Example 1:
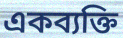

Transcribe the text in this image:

একব্যক্তি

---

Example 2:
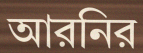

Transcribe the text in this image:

আরনির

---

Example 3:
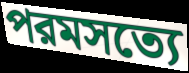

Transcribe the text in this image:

পরমসত্যে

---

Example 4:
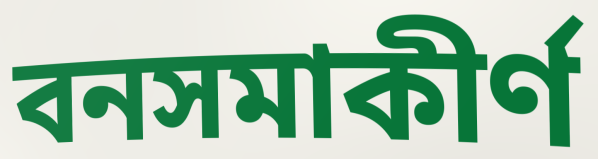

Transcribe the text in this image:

বনসমাকীর্ণ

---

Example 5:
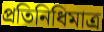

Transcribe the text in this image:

প্রতিনিধিমাত্র